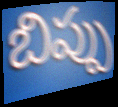
బిప్పు